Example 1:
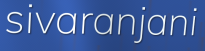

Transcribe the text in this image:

sivaranjani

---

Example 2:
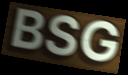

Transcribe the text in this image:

BSG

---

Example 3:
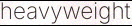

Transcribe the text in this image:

heavyweight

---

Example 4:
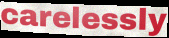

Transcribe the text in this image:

carelessly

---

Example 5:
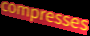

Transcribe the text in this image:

compresses